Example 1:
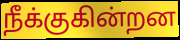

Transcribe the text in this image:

நீக்குகின்றன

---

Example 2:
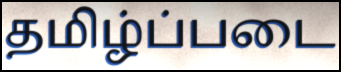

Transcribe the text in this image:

தமிழ்ப்படை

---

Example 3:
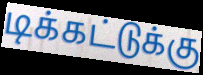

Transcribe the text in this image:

டிக்கட்டுக்கு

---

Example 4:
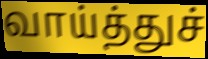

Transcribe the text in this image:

வாய்த்துச்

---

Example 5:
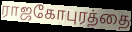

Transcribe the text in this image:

ராஜகோபுரத்தை